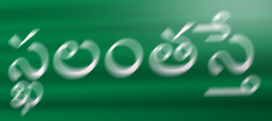
స్ఖలంతస్తే